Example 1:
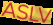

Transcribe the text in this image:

ASLV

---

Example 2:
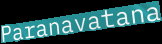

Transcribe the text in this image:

Paranavatana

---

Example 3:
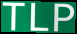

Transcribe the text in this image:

TLP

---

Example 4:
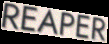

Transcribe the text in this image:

REAPER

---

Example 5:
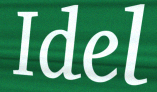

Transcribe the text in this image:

Idel